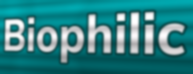
Biophilic